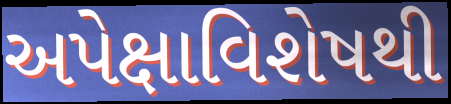
અપેક્ષાવિશેષથી